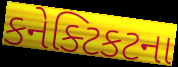
કનેક્ટિકટના